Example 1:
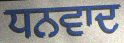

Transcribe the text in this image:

ਧਨਵਾਦ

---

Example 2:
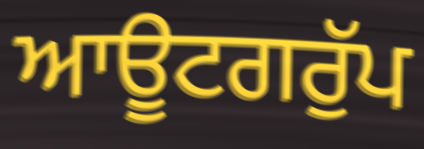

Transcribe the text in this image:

ਆਊਟਗਰੁੱਪ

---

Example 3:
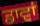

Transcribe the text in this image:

ਡਾਵਾਂ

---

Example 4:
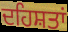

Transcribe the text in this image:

ਦਹਿਸ਼ਤਾਂ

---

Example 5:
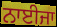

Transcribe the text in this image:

ਨਾਈਜਾ